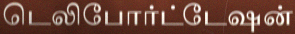
டெலிபோர்ட்டேஷன்